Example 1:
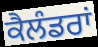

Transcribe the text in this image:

ਕੈਲੰਡਰਾਂ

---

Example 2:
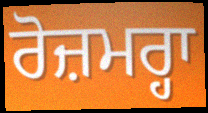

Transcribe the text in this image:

ਰੋਜ਼ਮਰ੍ਹਾ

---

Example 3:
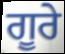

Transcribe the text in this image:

ਗੂਰੇ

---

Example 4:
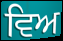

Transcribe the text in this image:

ਵਿਅ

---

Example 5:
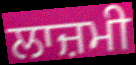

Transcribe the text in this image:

ਲਾਜ਼ਮੀ